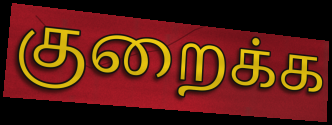
குறைக்க